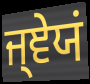
ਜ੍ਞੇਯਂ